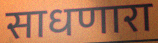
साधणारा